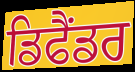
ਡਿਫੈਂਡਰ